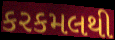
કરકમલથી